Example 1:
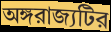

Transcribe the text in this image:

অঙ্গরাজ্যটির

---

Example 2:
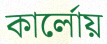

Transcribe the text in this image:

কার্লোয়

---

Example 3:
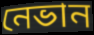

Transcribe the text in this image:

নেভান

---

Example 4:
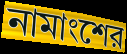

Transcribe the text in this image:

নামাংশের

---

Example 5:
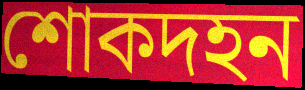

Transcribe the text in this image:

শোকদহন